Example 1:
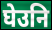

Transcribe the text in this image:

घेउनि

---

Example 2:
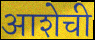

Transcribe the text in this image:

आशेची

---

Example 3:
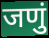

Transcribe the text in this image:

जणुं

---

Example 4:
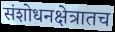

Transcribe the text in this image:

संशोधनक्षेत्रातच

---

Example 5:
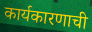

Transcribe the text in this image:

कार्यकारणाची